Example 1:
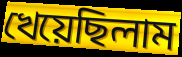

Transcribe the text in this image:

খেয়েছিলাম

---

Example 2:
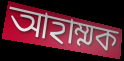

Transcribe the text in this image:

আহাম্মক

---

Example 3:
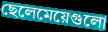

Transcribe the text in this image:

ছেলেমেয়েগুলো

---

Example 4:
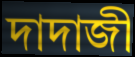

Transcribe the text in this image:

দাদাজী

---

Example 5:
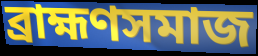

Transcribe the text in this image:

ব্রাহ্মণসমাজ